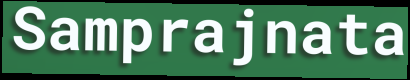
Samprajnata